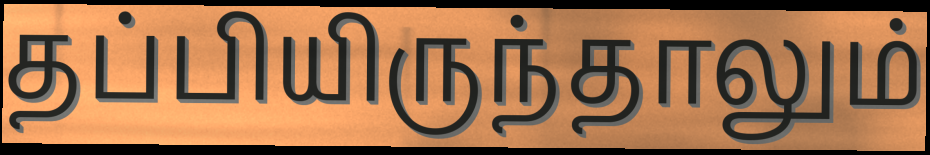
தப்பியிருந்தாலும்